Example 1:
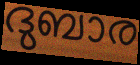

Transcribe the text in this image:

ദുബാര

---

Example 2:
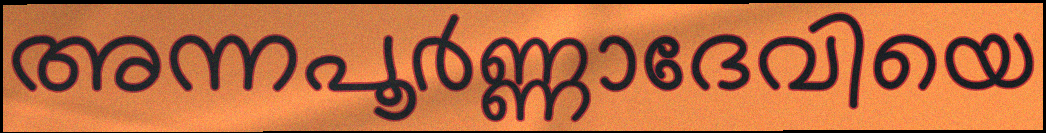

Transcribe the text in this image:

അന്നപൂർണ്ണാദേവിയെ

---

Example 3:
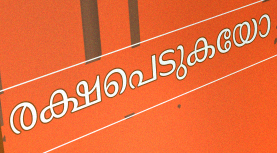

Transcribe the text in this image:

രക്ഷപെടുകയോ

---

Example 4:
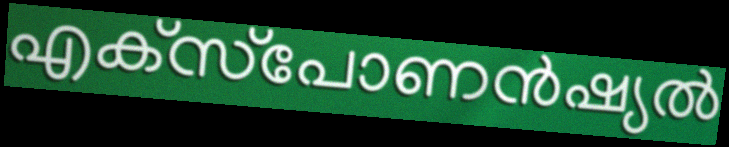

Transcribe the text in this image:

എക്‌സ്‌പോണൻഷ്യൽ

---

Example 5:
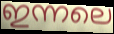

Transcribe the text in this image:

ഇന്നലെ